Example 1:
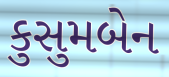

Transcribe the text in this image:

કુસુમબેન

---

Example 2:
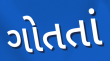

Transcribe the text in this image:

ગોતતાં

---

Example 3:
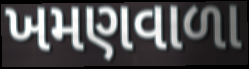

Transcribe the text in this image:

ખમણવાળા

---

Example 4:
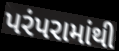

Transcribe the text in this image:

પરંપરામાંથી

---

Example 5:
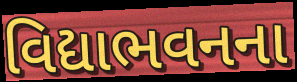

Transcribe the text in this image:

વિદ્યાભવનના